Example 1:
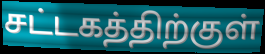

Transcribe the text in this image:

சட்டகத்திற்குள்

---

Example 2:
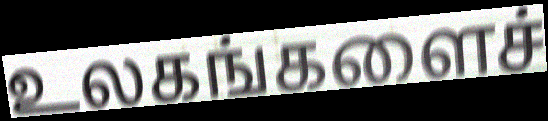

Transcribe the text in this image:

உலகங்களைச்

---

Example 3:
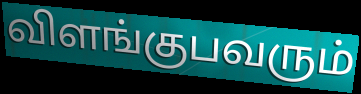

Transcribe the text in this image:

விளங்குபவரும்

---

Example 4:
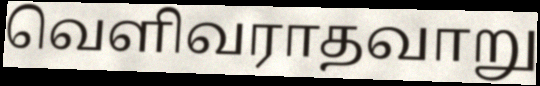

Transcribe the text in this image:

வெளிவராதவாறு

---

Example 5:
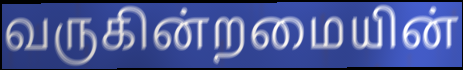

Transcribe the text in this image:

வருகின்றமையின்